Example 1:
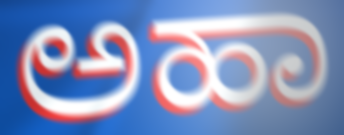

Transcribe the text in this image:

ಅಹಾ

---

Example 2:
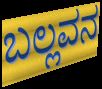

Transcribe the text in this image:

ಬಲ್ಲವನ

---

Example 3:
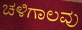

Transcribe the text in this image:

ಚಳಿಗಾಲವು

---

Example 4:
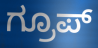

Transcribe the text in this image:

ಗ್ರೂಪ್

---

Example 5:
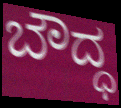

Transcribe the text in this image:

ಬೌದ್ಧ